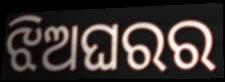
ଝିଅଘରର